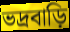
ভদ্রবাড়ি